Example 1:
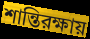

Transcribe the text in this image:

শান্তিরক্ষায়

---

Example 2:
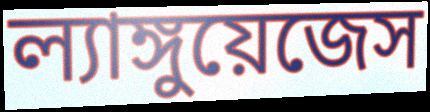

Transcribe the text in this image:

ল্যাঙ্গুয়েজেস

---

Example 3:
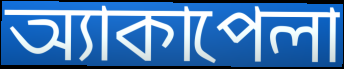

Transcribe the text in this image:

অ্যাকাপেলা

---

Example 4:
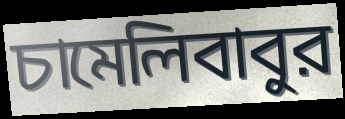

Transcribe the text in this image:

চামেলিবাবুর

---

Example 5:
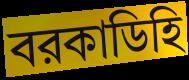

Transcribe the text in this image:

বরকাডিহি